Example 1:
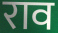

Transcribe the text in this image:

राव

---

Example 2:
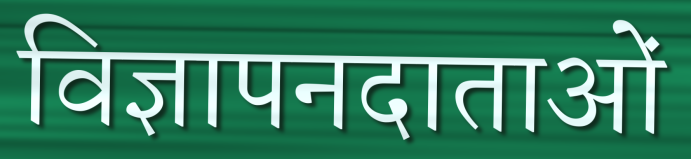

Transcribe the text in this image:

विज्ञापनदाताओं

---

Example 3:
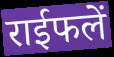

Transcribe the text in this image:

राईफलें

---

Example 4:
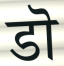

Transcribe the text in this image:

डॊ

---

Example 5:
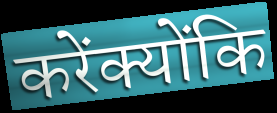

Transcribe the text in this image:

करेंक्योंकि